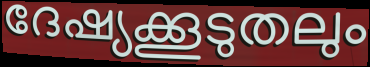
ദേഷ്യക്കൂടുതലും